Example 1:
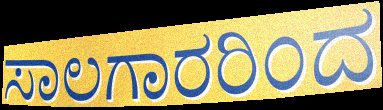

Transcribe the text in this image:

ಸಾಲಗಾರರಿಂದ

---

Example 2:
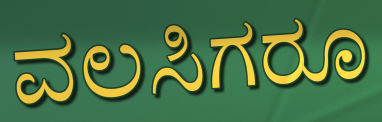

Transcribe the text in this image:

ವಲಸಿಗರೂ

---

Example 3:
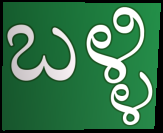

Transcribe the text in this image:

ಬಳ್ಳಿ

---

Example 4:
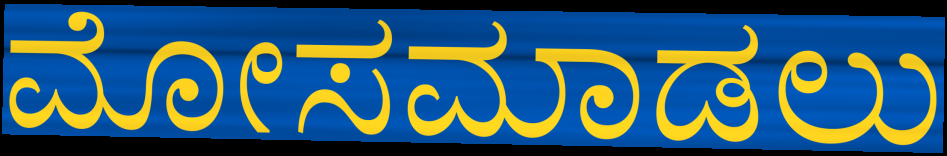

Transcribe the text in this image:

ಮೋಸಮಾಡಲು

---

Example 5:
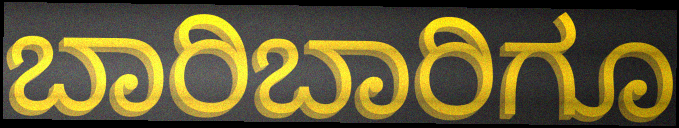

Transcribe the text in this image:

ಬಾರಿಬಾರಿಗೂ